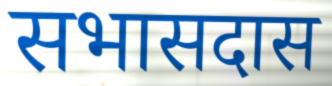
सभासदास